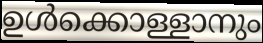
ഉൾക്കൊള്ളാനും